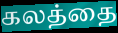
கலத்தை